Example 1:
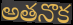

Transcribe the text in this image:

అతనొక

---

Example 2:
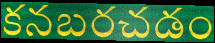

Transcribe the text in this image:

కనబరచడం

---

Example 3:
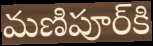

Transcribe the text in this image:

మణిపూర్‌కి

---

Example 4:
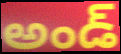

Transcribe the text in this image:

అండ్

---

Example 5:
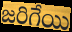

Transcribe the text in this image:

జరిగేయి